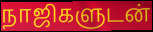
நாஜிகளுடன்